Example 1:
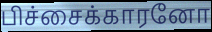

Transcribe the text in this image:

பிச்சைக்காரனோ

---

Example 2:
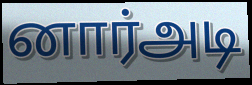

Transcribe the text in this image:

னார்அடி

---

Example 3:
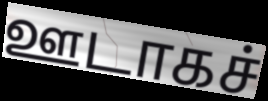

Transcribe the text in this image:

ஊடாகச்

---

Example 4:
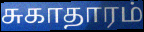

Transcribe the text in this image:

சுகாதாரம்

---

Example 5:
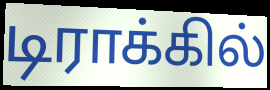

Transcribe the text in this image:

டிராக்கில்